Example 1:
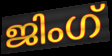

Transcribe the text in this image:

ജിംഗ്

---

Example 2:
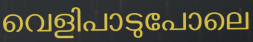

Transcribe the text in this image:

വെളിപാടുപോലെ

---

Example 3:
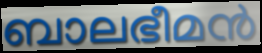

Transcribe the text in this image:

ബാലഭീമൻ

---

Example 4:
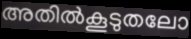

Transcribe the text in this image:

അതിൽകൂടുതലോ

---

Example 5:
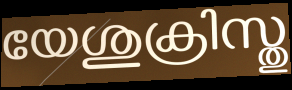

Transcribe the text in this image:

യേശുക്രിസ്തു